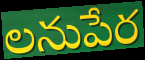
లనుపేర